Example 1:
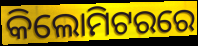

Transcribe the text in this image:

କିଲୋମିଟରରେ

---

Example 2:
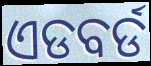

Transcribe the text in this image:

ଏଡବର୍ଡ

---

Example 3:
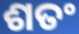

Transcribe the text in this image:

ଶତଂ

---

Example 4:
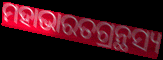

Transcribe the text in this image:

ମହାଭାରତଗ୍ରନ୍ଥସ୍ୟ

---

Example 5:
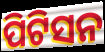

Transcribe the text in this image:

ପିଟିସନ